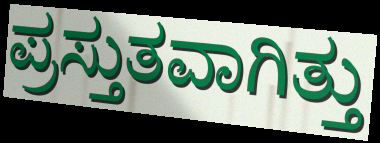
ಪ್ರಸ್ತುತವಾಗಿತ್ತು